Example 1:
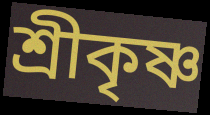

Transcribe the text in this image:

শ্ৰীকৃষ্ণ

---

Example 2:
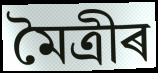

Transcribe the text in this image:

মৈত্ৰীৰ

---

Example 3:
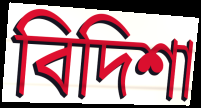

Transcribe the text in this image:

বিদিশা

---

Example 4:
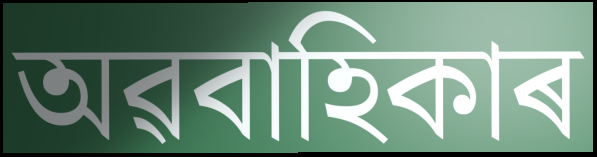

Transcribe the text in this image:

অৱবাহিকাৰ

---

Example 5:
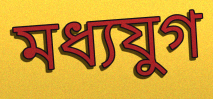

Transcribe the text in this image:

মধ্যযুগ